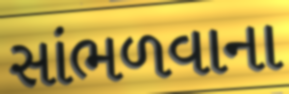
સાંભળવાના